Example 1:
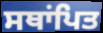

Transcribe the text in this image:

ਸਥਾਂਪਿਤ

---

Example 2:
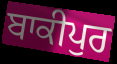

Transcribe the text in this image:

ਬਾਕੀਪੁਰ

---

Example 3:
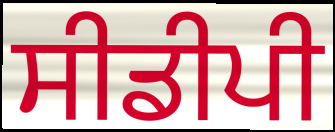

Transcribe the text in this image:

ਸੀਡੀਪੀ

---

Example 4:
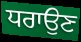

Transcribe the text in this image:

ਧਰਾਉਣ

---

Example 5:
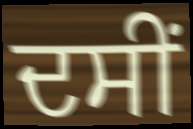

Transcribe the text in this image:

ਦਸੀਂ